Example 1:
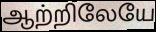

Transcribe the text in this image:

ஆற்றிலேயே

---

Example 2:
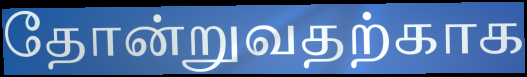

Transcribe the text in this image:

தோன்றுவதற்காக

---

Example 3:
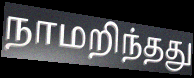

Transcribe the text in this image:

நாமறிந்தது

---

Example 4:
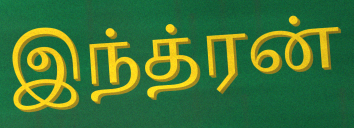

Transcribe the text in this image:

இந்த்ரன்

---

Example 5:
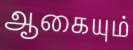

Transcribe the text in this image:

ஆகையும்